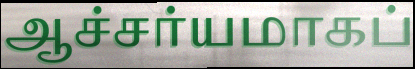
ஆச்சர்யமாகப்